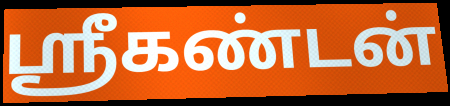
ஸ்ரீகண்டன்